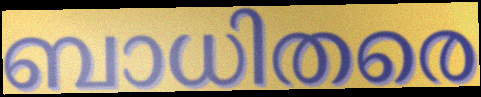
ബാധിതരെ